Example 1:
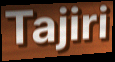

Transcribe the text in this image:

Tajiri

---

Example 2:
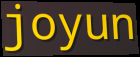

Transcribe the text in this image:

joyun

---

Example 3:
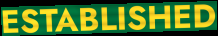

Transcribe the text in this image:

ESTABLISHED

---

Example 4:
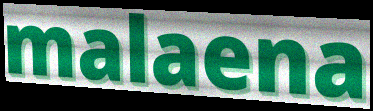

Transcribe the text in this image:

malaena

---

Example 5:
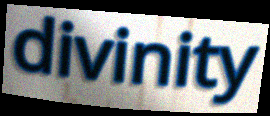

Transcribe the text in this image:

divinity